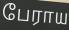
பேராய